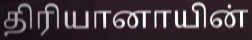
திரியானாயின்